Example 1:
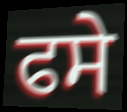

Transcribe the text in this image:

ਫਸੇ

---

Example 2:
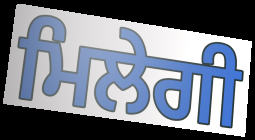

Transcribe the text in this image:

ਮਿਲੇਗੀ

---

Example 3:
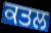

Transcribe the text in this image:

ਕਤਲ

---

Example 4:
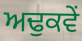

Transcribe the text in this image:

ਅਢੁਕਵੇਂ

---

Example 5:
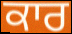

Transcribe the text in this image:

ਕਾਰ